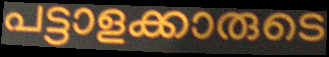
പട്ടാളക്കാരുടെ